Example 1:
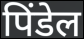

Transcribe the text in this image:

पिंडेल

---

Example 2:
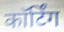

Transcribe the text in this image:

कॉर्टिंग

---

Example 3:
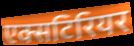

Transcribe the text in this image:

एक्सटिरियर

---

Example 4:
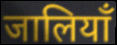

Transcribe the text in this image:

जालियाँ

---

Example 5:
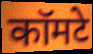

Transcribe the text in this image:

कॉमटे